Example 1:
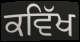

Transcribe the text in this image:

ਕਵਿੱਖ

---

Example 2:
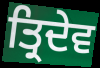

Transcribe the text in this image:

ਤ੍ਰਿਦੇਵ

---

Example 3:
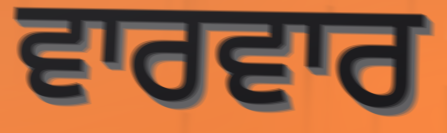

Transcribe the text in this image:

ਵਾਰਵਾਰ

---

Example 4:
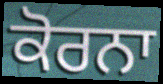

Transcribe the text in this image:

ਕੋਰਨਾ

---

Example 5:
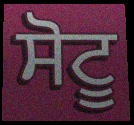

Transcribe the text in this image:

ਸੋਟੂ